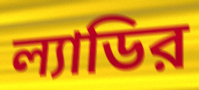
ল্যাডির